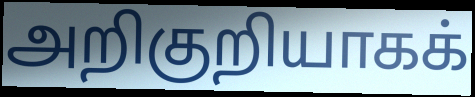
அறிகுறியாகக்